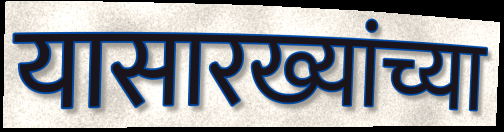
यासारख्यांच्या